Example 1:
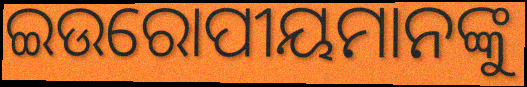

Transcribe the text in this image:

ଇଉରୋପୀୟମାନଙ୍କୁ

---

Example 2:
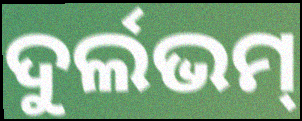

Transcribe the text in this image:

ଦୁର୍ଲଭମ୍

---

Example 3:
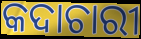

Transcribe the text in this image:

କଦାଚାରୀ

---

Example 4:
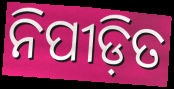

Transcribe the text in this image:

ନିପୀଡ଼ିତ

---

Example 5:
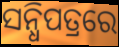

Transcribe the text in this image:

ସନ୍ଧିପତ୍ରରେ